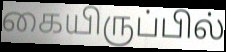
கையிருப்பில்